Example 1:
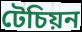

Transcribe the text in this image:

টেচিয়ন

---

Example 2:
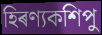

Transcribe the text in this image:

হিৰণ্যকশিপু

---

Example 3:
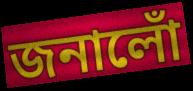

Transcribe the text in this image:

জনালোঁ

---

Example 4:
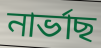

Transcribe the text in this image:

নাৰ্ভাছ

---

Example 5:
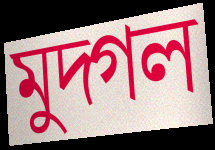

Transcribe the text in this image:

মুদ্গল